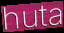
huta